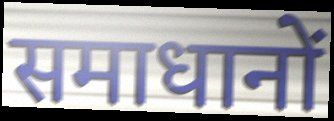
समाधानों